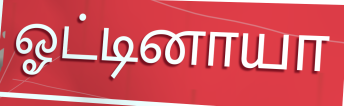
ஓட்டினாயா